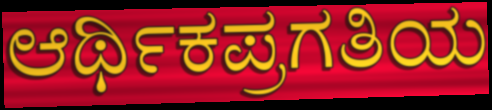
ಆರ್ಥಿಕಪ್ರಗತಿಯ